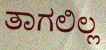
ತಾಗಲಿಲ್ಲ